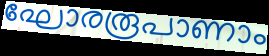
ഘോരരൂപാണാം